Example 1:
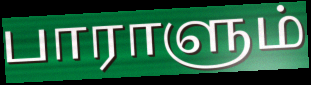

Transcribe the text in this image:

பாராளும்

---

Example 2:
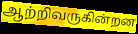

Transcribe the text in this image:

ஆற்றிவருகின்றன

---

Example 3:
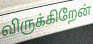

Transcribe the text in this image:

விருக்கிறேன்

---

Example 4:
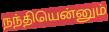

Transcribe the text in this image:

நந்தியென்னும்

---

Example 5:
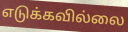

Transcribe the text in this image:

எடுக்கவில்லை